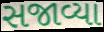
સજાવ્યા